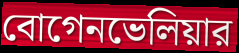
বোগেনভেলিয়ার